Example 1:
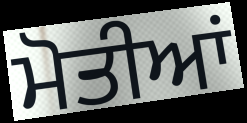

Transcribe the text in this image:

ਮੋਤੀਆਂ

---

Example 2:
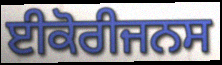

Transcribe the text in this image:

ਈਕੋਰੀਜਨਸ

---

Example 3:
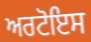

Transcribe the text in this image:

ਅਰਟੋਇਸ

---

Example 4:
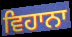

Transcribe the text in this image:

ਵਿਹਾਨਾ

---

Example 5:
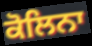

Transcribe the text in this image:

ਕੋਲਿਨਾ